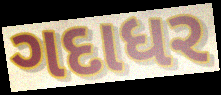
ગદાધર